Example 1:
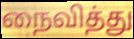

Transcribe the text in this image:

நைவித்து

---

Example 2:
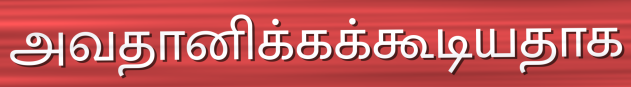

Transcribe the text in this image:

அவதானிக்கக்கூடியதாக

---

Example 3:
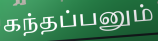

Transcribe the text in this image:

கந்தப்பனும்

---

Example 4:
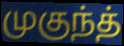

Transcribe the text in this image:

முகுந்த்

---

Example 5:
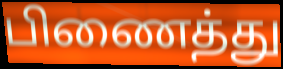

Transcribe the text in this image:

பிணைத்து